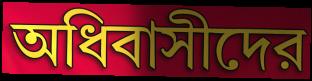
অধিবাসীদের